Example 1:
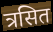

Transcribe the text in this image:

त्रसित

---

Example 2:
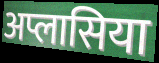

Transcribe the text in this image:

अप्लासिया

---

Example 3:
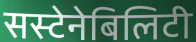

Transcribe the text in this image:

सस्टेनेबिलिटी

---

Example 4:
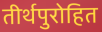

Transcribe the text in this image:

तीर्थपुरोहित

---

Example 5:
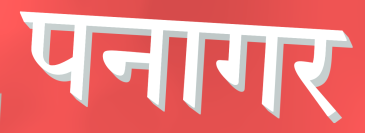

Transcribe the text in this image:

पनागर